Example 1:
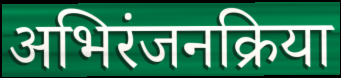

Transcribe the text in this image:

अभिरंजनक्रिया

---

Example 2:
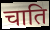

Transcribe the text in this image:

चाति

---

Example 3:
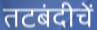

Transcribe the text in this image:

तटबंदीचें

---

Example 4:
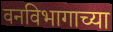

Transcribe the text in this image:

वनविभागाच्या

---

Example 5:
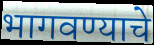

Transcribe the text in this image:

भागवण्याचे